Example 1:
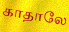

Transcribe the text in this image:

காதாலே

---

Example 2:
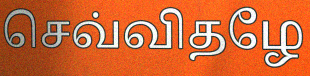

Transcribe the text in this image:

செவ்விதழே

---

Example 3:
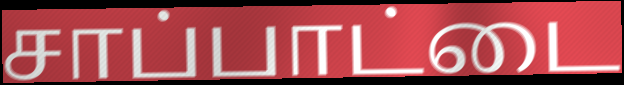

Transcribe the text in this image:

சாப்பாட்டை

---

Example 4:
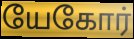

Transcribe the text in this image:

யேகோர்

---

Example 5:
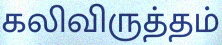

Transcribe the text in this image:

கலிவிருத்தம்